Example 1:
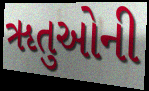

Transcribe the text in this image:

ૠતુઓની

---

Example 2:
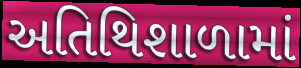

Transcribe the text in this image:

અતિથિશાળામાં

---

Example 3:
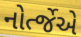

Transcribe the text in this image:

નોર્ત્જેએ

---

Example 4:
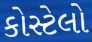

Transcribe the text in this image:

કોસ્ટેલો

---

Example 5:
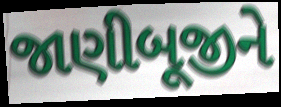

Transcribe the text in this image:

જાણીબૂજીને